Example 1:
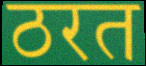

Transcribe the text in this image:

ठरत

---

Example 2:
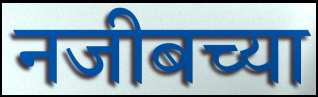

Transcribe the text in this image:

नजीबच्या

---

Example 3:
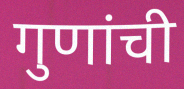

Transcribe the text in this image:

गुणांची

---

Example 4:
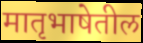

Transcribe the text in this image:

मातृभाषेतील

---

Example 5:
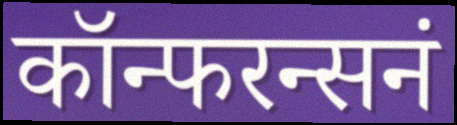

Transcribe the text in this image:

कॉन्फरन्सनं